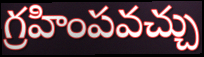
గ్రహింపవచ్చు